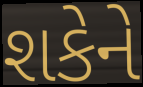
શકેને